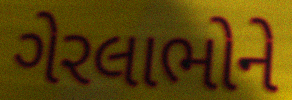
ગેરલાભોને